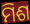
ମିଶ